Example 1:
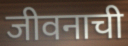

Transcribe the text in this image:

जीवनाची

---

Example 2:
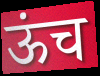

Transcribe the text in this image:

ऊंच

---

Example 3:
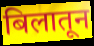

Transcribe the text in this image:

बिलातून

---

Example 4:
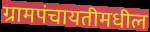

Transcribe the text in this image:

ग्रामपंचायतीमधील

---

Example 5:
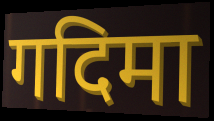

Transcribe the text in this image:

गदिमा